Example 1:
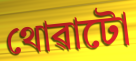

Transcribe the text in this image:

থোৱাটো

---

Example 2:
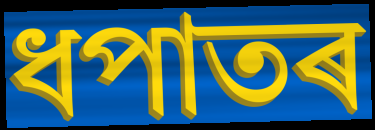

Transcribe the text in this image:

ধপাতৰ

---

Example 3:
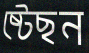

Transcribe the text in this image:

ষ্টেছন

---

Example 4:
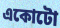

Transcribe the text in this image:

একোটো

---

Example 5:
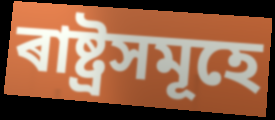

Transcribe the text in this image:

ৰাষ্ট্ৰসমূহে